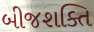
બીજશક્તિ